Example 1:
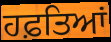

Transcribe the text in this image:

ਹਫ਼ਤਿਆਂ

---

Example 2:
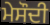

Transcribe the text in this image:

ਮੇਸੌਦੀ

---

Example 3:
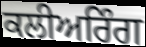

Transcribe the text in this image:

ਕਲੀਅਰਿੰਗ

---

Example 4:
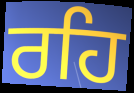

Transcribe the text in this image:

ਰਹਿ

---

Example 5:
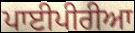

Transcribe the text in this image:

ਪਾਈਪੀਰੀਆ